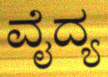
ವೈದ್ಯ